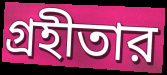
গ্রহীতার